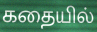
கதையில்